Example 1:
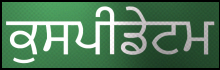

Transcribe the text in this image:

ਕੁਸਪੀਡੇਟਮ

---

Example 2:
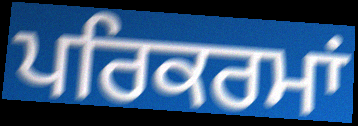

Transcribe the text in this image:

ਪਰਿਕਰਮਾਂ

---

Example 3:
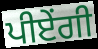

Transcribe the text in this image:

ਪੀਏਂਗੀ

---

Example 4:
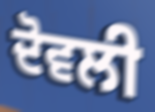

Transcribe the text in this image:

ਦੋਵਲੀ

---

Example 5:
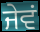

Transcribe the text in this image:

ਜੇਵਂ